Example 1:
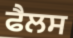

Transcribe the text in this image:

ਫੈਲਸ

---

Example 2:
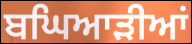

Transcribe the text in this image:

ਬਘਿਆੜੀਆਂ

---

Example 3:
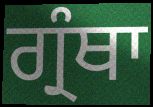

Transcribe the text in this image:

ਗ੍ਰੰਥਾ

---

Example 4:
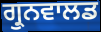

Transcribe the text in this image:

ਗ੍ਰੁਨਵਾਲਡ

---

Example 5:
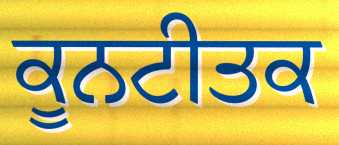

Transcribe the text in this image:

ਕੂਨਟੀਤਕ